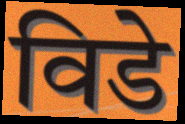
विडे